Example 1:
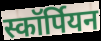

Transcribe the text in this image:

स्कॉर्पियन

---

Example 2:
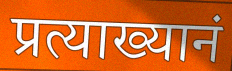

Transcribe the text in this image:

प्रत्याख्यानं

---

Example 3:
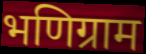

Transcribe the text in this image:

भणिग्राम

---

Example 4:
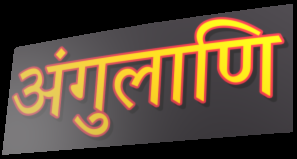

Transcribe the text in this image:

अंगुलाणि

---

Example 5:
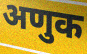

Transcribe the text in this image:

अणुक